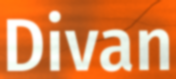
Divan